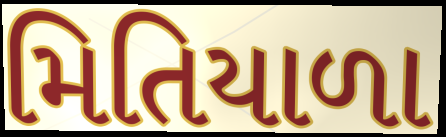
મિતિયાળા